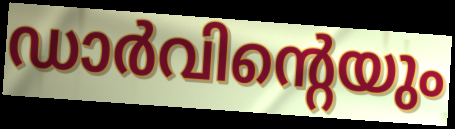
ഡാർവിന്റെയും